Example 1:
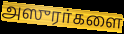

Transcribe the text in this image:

அஸுரர்களை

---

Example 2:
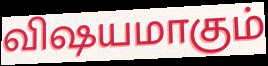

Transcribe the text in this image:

விஷயமாகும்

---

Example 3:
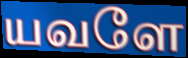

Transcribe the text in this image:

யவளே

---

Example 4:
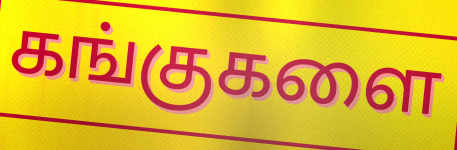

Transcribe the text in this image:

கங்குகளை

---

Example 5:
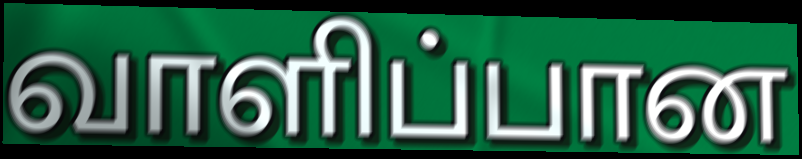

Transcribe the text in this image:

வாளிப்பான